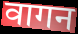
वागन